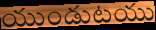
యుండుటయు